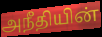
அநீதியின்